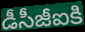
డీసీజీఐకి